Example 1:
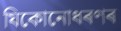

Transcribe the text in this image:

যিকোনোধৰণৰ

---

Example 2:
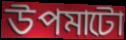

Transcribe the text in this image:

উপমাটো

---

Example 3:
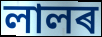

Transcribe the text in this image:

লালৰ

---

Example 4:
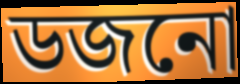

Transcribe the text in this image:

ডজনো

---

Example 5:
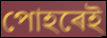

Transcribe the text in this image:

পোহৰেই